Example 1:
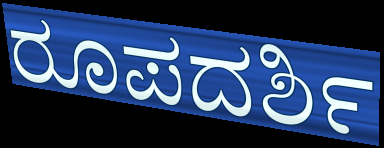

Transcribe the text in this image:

ರೂಪದರ್ಶಿ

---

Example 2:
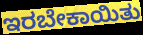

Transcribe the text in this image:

ಇರಬೇಕಾಯಿತು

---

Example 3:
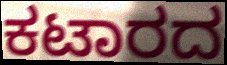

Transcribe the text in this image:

ಕಟಾರದ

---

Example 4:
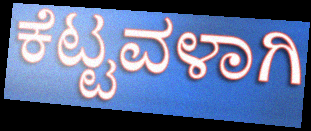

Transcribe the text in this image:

ಕೆಟ್ಟವಳಾಗಿ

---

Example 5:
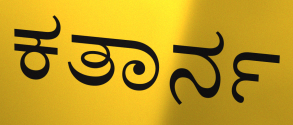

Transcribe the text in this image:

ಕತಾರ್ನ